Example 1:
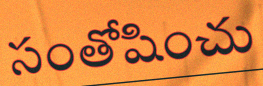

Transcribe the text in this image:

సంతోషించు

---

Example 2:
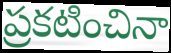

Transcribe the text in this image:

ప్రకటించినా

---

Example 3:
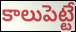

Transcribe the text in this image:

కాలుపెట్టే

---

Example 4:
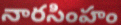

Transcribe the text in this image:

నారసింహం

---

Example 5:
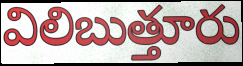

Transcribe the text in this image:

విలిబుత్తూరు